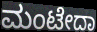
ಮಂಟೇದಾ